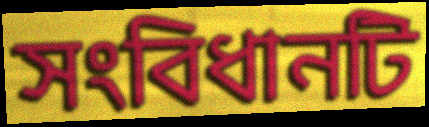
সংবিধানটি